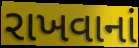
રાખવાનાં